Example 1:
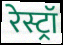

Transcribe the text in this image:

रेस्ट्रॉ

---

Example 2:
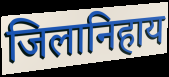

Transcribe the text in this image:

जिलानिहाय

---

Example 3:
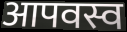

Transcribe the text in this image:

आपवस्व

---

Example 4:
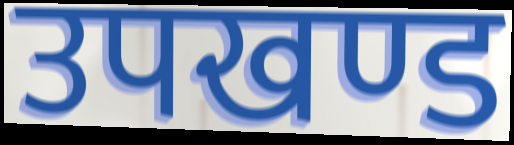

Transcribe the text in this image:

उपखण्ड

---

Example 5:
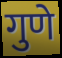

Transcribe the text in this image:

गुणे